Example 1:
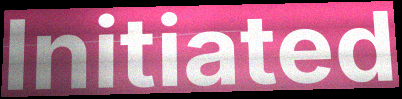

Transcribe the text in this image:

Initiated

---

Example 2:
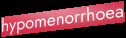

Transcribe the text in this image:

hypomenorrhoea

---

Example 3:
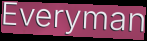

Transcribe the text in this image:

Everyman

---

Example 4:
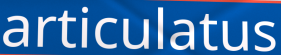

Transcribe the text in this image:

articulatus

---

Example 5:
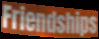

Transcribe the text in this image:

Friendships